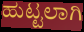
ಹುಟ್ಟಲಾಗಿ